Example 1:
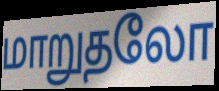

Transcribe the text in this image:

மாறுதலோ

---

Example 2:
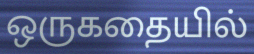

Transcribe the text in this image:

ஒருகதையில்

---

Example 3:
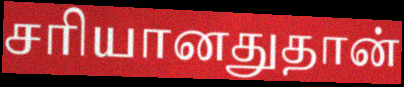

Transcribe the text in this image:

சரியானதுதான்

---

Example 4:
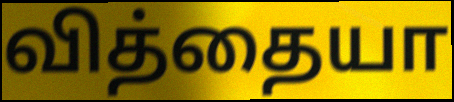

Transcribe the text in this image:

வித்தையா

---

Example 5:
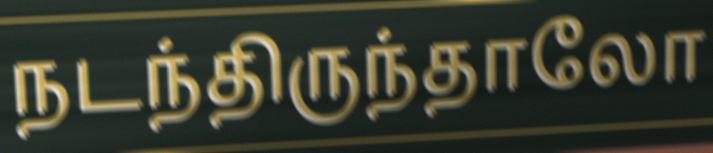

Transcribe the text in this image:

நடந்திருந்தாலோ